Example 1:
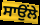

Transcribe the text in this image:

ਸਾਉਂਲੇ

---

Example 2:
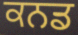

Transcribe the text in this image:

ਕਨਡ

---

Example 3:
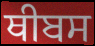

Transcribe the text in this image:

ਥੀਬਸ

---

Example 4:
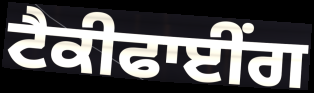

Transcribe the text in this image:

ਟੈਕੀਫਾਈਂਗ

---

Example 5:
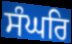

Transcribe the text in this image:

ਸੰਘਰਿ